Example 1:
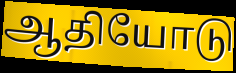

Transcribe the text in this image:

ஆதியோடு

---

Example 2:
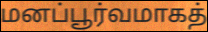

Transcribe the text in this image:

மனப்பூர்வமாகத்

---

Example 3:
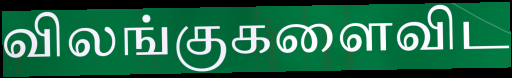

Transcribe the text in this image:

விலங்குகளைவிட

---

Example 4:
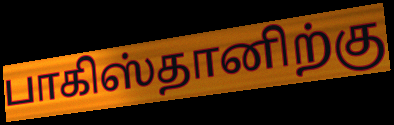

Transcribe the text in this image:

பாகிஸ்தானிற்கு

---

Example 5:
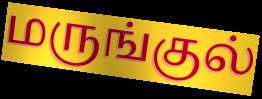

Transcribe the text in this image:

மருங்குல்